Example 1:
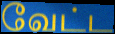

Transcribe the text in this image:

வேட்ட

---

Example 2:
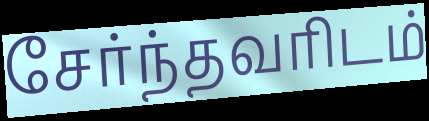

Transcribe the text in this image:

சேர்ந்தவரிடம்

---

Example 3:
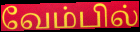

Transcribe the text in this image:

வேம்பில்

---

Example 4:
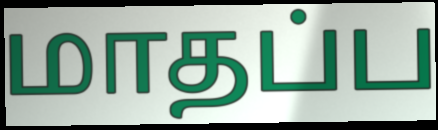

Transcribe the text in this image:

மாதப்ப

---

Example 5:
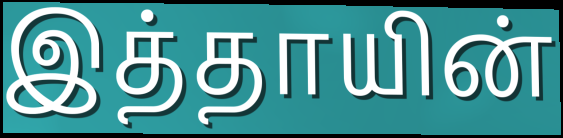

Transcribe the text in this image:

இத்தாயின்